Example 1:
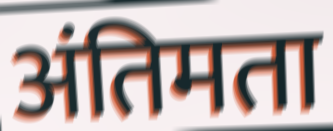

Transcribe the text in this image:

अंतिमता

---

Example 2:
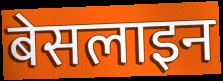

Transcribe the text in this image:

बेसलाइन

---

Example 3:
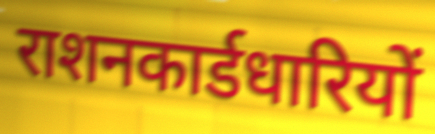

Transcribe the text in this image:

राशनकार्डधारियों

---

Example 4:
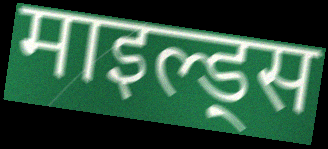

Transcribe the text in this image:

माइल्ड्स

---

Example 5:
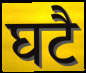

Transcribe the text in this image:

घटै